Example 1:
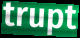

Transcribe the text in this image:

trupt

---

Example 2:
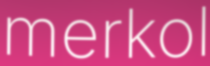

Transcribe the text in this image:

merkol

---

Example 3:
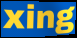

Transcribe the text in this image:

xing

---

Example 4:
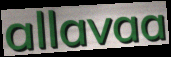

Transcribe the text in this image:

allavaa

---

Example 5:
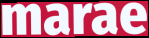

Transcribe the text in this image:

marae